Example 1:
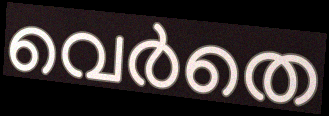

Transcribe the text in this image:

വെർതെ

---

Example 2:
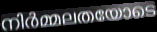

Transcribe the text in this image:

നിർമ്മലതയോടെ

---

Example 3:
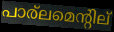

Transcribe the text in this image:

പാര്ലമെന്റില്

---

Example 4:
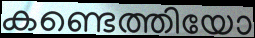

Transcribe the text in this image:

കണ്ടെത്തിയോ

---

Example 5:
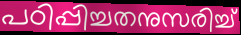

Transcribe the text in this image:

പഠിപ്പിച്ചതനുസരിച്ച്